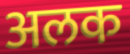
अलक